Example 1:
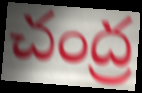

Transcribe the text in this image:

చంద్ర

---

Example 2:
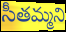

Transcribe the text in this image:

సీతమ్మని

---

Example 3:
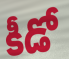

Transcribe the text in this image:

కీడో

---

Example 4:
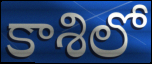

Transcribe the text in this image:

కాశిలో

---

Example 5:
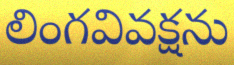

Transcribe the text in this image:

లింగవివక్షను